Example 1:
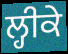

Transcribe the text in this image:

ਲ੍ਹੀਕੇ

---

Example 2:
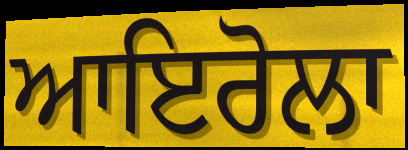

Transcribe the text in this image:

ਆਇਰੋਲਾ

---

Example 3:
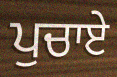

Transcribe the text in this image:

ਪੁਚਾਏ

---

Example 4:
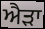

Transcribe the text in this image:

ਐੜਾ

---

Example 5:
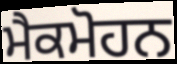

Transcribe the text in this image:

ਮੈਕਮੋਹਨ